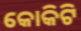
କୋକିଟି